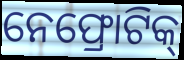
ନେଫ୍ରୋଟିକ୍